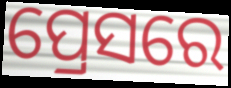
ପ୍ରେସରେ